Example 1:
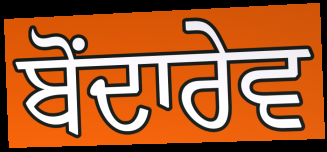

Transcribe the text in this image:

ਬੋਂਦਾਰੇਵ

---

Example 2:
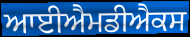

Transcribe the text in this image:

ਆਈਐਮਡੀਐਕਸ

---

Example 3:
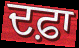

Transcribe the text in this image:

ਦਫ਼ਾ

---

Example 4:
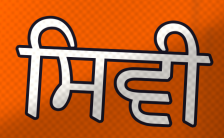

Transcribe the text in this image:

ਸਿਵੀ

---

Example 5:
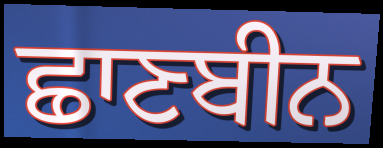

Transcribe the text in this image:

ਛਾਣਬੀਨ